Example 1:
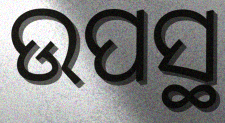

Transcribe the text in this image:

ଉପସ୍ଥ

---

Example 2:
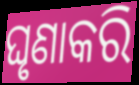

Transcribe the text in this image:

ଘୃଣାକରି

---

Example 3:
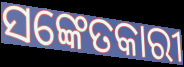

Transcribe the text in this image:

ସଙ୍କେତକାରୀ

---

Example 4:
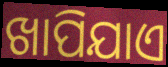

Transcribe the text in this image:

ଖାପିଯାଏ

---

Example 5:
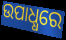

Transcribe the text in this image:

ଉପାଧ୍ଧରେ